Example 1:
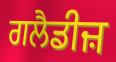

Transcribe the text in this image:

ਗਲੈਡੀਜ਼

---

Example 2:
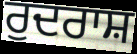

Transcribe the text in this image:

ਰੁਦਰਾਸ਼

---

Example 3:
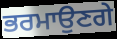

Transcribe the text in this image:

ਭਰਮਾਉਣਗੇ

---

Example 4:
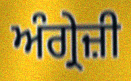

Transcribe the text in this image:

ਅੰਗ੍ਰੇਜ਼ੀ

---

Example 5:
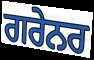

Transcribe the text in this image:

ਗਰੇਨਰ